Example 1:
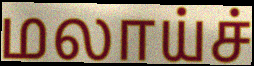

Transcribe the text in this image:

மலாய்ச்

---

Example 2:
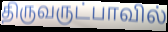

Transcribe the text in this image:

திருவருட்பாவில்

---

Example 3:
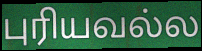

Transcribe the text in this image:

புரியவல்ல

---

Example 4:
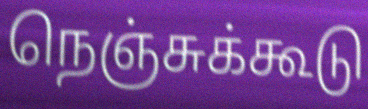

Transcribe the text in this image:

நெஞ்சுக்கூடு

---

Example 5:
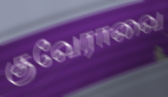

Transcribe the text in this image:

குவேராவை